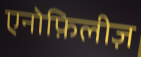
एनोफ़िलीज़